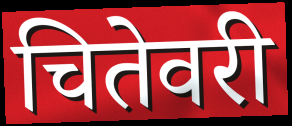
चितेवरी